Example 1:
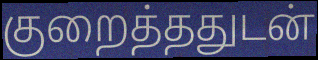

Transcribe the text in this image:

குறைத்ததுடன்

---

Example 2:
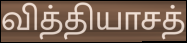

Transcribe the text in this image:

வித்தியாசத்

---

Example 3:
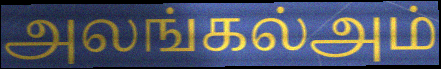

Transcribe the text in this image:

அலங்கல்அம்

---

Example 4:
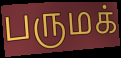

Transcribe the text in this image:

பருமக்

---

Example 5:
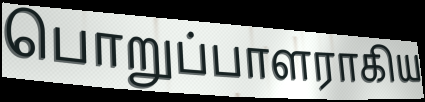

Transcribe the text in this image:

பொறுப்பாளராகிய